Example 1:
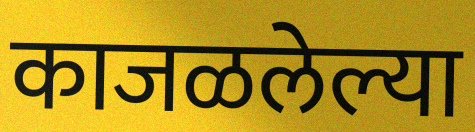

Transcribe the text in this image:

काजळलेल्या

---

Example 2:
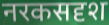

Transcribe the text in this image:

नरकसदृश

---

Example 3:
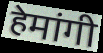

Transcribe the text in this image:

हेमांगी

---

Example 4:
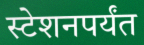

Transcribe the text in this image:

स्टेशनपर्यंत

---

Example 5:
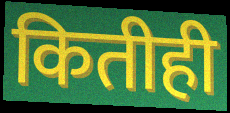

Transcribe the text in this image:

कितीही